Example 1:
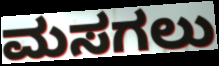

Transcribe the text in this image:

ಮಸಗಲು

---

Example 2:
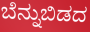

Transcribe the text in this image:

ಬೆನ್ನುಬಿಡದ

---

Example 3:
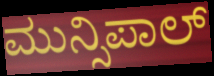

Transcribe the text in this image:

ಮುನ್ಸಿಪಾಲ್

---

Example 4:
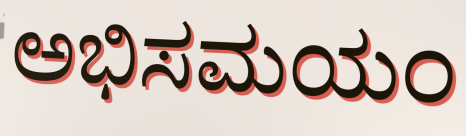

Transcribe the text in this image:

ಅಭಿಸಮಯಂ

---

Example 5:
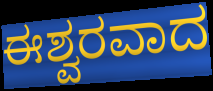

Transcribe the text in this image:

ಈಶ್ವರವಾದ